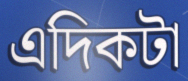
এদিকটা